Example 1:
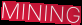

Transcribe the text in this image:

MINING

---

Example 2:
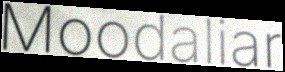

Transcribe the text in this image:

Moodaliar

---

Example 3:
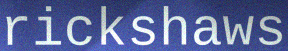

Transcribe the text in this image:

rickshaws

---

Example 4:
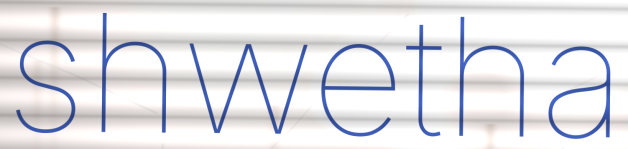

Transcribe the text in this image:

shwetha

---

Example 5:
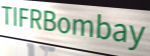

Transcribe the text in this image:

TIFRBombay